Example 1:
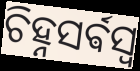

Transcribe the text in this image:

ଚିହ୍ନସର୍ଵସ୍ଵ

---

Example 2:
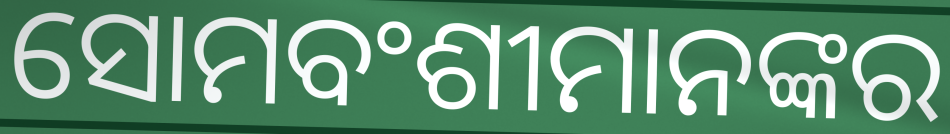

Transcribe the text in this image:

ସୋମବଂଶୀମାନଙ୍କର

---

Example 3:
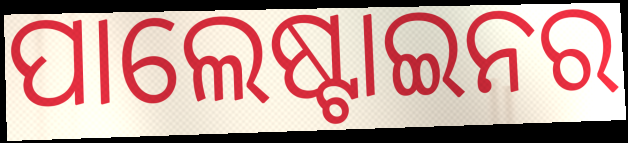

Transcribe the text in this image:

ପାଲେଷ୍ଟାଇନର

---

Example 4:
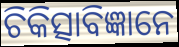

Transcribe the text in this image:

ଚିକିତ୍ସାବିଜ୍ଞାନେ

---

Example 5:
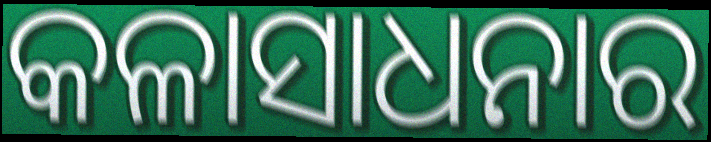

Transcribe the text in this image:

କଳାସାଧନାର